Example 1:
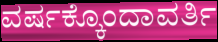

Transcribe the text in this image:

ವರ್ಷಕ್ಕೊಂದಾವರ್ತಿ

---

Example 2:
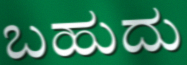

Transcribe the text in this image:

ಬಹುದು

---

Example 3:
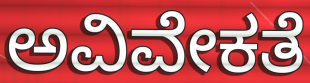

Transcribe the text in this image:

ಅವಿವೇಕತೆ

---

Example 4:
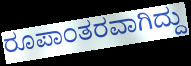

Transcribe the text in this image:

ರೂಪಾಂತರವಾಗಿದ್ದು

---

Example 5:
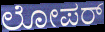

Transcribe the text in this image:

ಲೋಪರ್